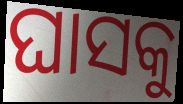
ଘାସକୁ